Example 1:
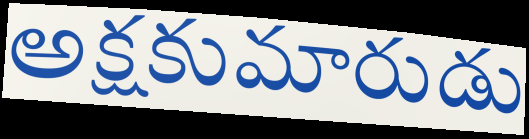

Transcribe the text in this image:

అక్షకుమారుడు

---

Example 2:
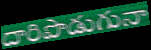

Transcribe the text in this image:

దారిపొడుగునా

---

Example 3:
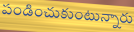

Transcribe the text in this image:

పండించుకుంటున్నారు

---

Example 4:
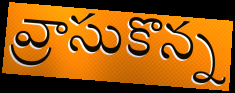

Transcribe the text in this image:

వ్రాసుకొన్న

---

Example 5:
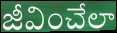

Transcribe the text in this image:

జీవించేలా